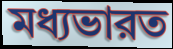
মধ্যভারত